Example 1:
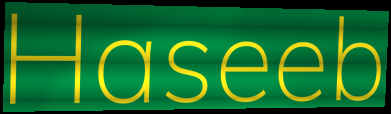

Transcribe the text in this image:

Haseeb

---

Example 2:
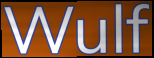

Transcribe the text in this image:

Wulf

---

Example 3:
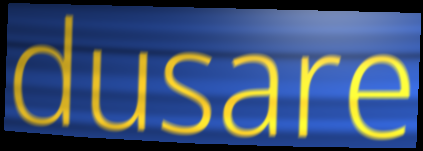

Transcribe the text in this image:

dusare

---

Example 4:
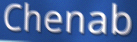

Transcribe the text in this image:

Chenab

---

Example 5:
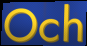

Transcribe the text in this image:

Och